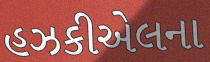
હઝકીએલના